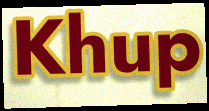
Khup